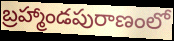
బ్రహ్మాండపురాణంలో